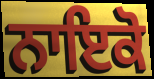
ਨਾਇਕੋ